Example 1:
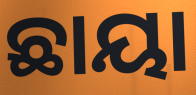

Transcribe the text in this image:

ଛାୟା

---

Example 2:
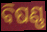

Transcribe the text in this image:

ବିଷଣ୍ଣ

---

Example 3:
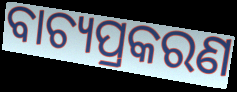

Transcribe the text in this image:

ବାଚ୍ୟପ୍ରକରଣ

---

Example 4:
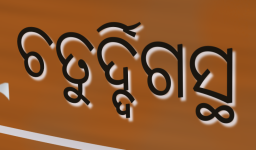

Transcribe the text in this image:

ଚତୁର୍ଦ୍ଦିଗସ୍ଥ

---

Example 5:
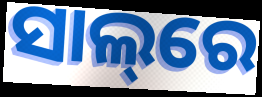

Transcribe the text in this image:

ସାଲ୍‌ରେ